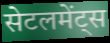
सेटलमेंट्स